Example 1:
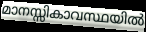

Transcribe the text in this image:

മാനസ്സികാവസ്ഥയിൽ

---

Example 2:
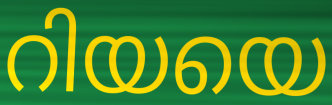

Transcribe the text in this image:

റിയയെ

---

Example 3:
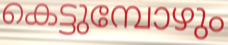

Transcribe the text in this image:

കെട്ടുമ്പോഴും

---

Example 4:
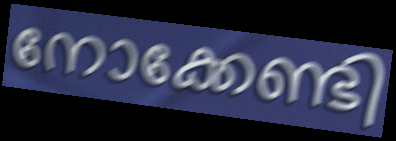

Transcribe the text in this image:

നോക്കേണ്ടി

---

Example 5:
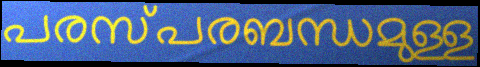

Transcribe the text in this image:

പരസ്പരബന്ധമുള്ള